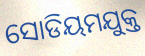
ସୋଡିୟମଯୁକ୍ତ